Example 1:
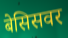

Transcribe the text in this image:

बेसिसवर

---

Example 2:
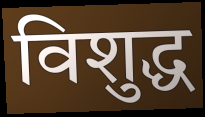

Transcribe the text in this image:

विशुद्ध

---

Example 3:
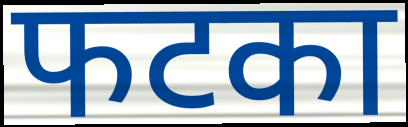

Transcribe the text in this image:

फटका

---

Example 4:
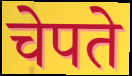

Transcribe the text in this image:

चेपते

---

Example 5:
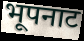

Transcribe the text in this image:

भूपनाट